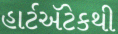
હાર્ટઍટેકથી